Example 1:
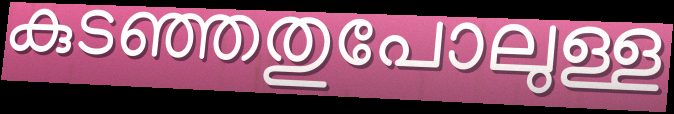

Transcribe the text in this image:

കുടഞ്ഞതുപോലുള്ള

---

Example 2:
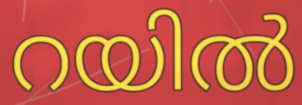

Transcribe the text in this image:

റയിൽ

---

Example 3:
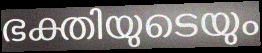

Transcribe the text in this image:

ഭക്തിയുടെയും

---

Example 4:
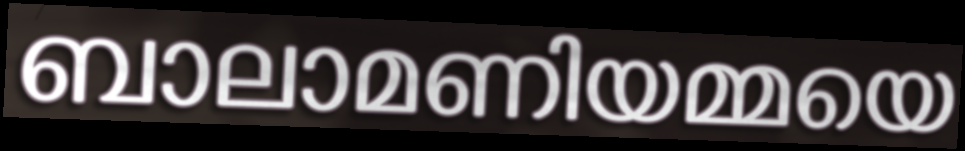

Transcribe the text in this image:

ബാലാമണിയമ്മയെ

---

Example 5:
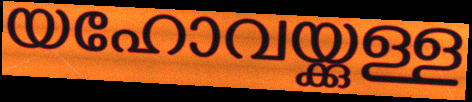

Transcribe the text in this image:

യഹോവയ്ക്കുള്ള